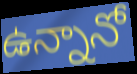
ఉన్నానో